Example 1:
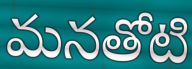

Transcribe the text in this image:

మనతోటి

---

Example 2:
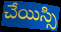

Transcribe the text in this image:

చేయిస్సి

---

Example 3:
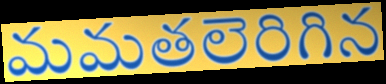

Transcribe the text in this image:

మమతలెరిగిన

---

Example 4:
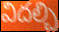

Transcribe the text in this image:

విదల్చి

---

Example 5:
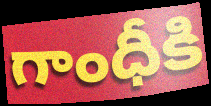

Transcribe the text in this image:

గాంధీకి